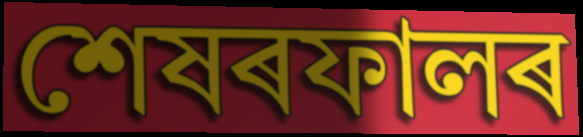
শেষৰফালৰ